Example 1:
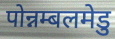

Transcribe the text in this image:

पोन्नम्बलमेडु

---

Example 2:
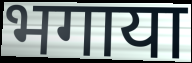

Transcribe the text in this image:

भगाया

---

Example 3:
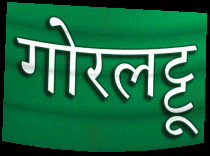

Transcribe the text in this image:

गोरलट्टू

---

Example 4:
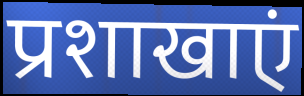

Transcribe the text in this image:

प्रशाखाएं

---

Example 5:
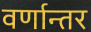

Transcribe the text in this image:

वर्णान्तर